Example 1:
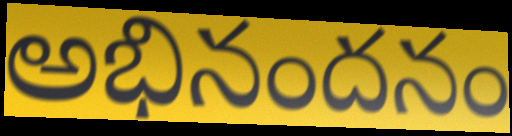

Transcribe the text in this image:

అభినందనం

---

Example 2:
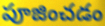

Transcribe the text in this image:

పూజించడం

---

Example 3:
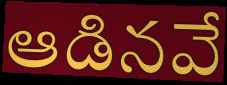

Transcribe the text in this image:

ఆడినవే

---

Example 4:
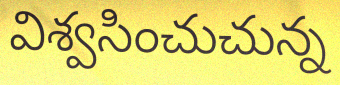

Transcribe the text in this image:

విశ్వసించుచున్న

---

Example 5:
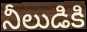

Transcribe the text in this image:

నీలుడికి